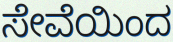
ಸೇವೆಯಿಂದ